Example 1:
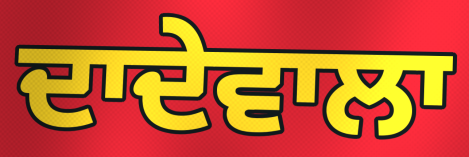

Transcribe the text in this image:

ਦਾਦੇਵਾਲਾ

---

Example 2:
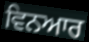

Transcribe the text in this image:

ਵਿਨਆਰ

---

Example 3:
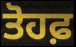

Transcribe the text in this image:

ਤੋਹਫ਼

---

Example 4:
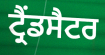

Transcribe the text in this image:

ਟ੍ਰੈਂਡਸੈਟਰ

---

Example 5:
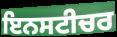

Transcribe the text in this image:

ਇਨਸਟੀਚਰ